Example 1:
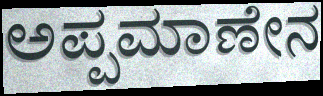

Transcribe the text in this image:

ಅಪ್ಪಮಾಣೇನ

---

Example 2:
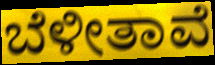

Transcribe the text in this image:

ಬೆಳೀತಾವೆ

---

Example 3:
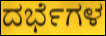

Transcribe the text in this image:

ದರ್ಭೆಗಳ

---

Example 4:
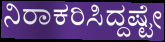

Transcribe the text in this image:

ನಿರಾಕರಿಸಿದ್ದಷ್ಟೇ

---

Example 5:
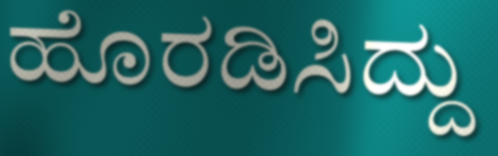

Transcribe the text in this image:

ಹೊರಡಿಸಿದ್ದು